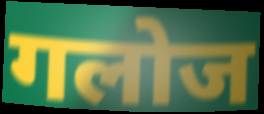
गलोज